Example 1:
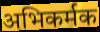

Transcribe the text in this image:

अभिकर्मक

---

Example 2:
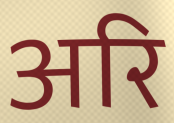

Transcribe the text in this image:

अरि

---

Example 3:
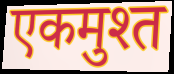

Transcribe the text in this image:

एकमुश्त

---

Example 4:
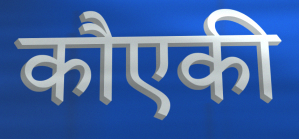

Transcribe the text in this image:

कौएकी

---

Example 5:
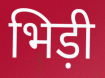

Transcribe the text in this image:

भिड़ी